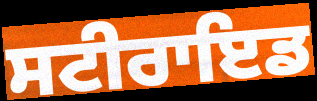
ਸਟੀਰਾਇਡ